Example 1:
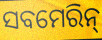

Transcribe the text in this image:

ସବମେରିନ୍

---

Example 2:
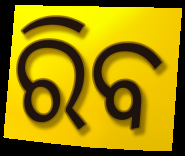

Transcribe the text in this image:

ରିବ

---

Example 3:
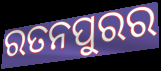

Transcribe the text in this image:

ରତନପୁରର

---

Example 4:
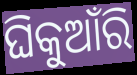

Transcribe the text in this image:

ଘିକୁଆଁରି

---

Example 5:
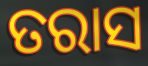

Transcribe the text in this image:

ତରାସ